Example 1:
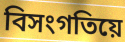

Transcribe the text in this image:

বিসংগতিয়ে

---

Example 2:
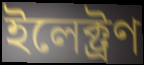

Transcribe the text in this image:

ইলেক্ট্ৰণ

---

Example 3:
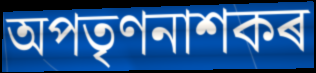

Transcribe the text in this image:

অপতৃণনাশকৰ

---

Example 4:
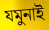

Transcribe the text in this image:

যমুনাই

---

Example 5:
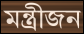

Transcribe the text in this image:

মন্ত্ৰীজন